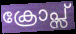
ക്രോപ്സ്